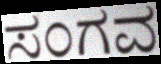
ಸಂಗವ